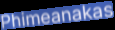
Phimeanakas